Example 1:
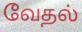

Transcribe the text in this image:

வேதல்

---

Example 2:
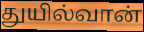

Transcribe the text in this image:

துயில்வான்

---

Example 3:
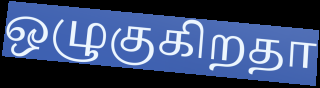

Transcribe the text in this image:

ஒழுகுகிறதா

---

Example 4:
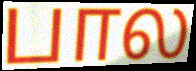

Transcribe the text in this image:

பால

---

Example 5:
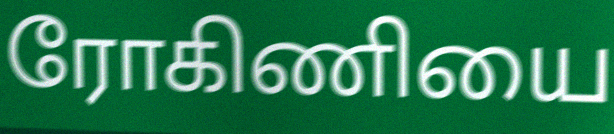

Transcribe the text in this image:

ரோகிணியை